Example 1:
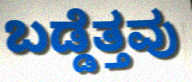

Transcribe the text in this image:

ಬಡ್ಡೆತ್ತವು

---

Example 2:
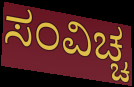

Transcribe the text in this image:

ಸಂವಿಚ್ಚ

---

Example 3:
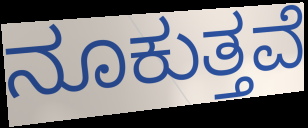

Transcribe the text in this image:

ನೂಕುತ್ತವೆ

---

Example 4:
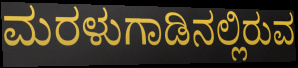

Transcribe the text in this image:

ಮರಳುಗಾಡಿನಲ್ಲಿರುವ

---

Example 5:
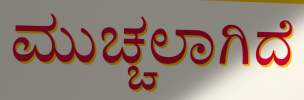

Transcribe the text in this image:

ಮುಚ್ಚಲಾಗಿದೆ